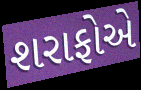
શરાફોએ